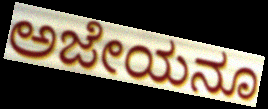
ಅಜೇಯನೂ